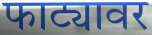
फाट्यावर